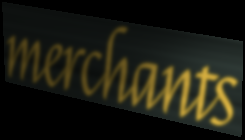
merchants